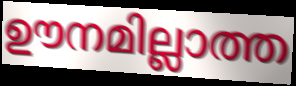
ഊനമില്ലാത്ത